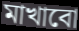
মাখাবো